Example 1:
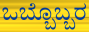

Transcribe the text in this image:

ಒಬ್ಬೊಬ್ಬರ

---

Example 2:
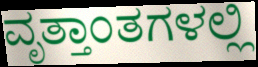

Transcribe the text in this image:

ವೃತ್ತಾಂತಗಳಲ್ಲಿ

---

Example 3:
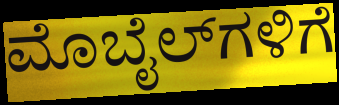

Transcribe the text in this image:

ಮೊಬೈಲ್‌ಗಳಿಗೆ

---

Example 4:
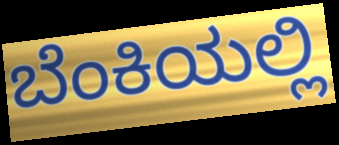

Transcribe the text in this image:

ಬೆಂಕಿಯಲ್ಲಿ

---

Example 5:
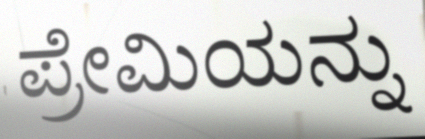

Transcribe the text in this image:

ಪ್ರೇಮಿಯನ್ನು